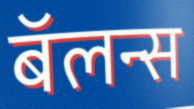
बॅलन्स